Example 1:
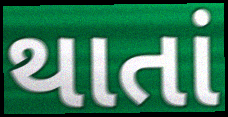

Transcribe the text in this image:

થાતાં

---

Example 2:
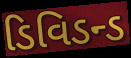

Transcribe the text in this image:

ડિવિડન્ડ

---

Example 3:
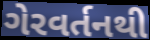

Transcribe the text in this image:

ગેરવર્તનથી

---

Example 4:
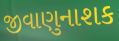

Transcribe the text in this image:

જીવાણુનાશક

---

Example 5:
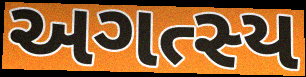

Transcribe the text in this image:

અગત્સ્ય